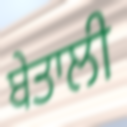
ਬੇਤਾਲੀ